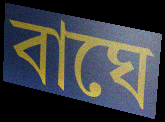
বাঘে